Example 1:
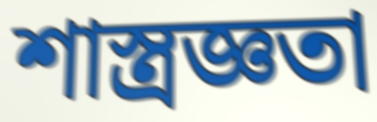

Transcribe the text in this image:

শাস্ত্রজ্ঞতা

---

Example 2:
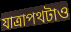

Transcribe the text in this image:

যাত্রাপথটাও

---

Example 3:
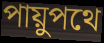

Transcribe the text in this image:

পায়ুপথে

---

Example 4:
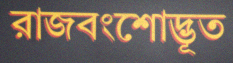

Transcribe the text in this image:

রাজবংশোদ্ভূত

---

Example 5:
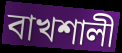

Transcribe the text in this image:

বাখশালী